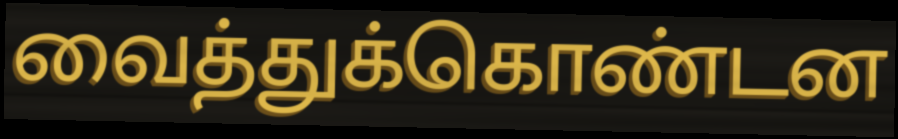
வைத்துக்கொண்டன